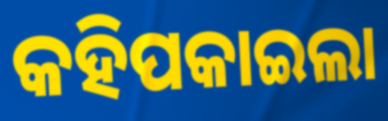
କହିପକାଇଲା